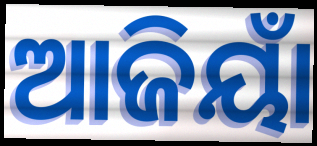
ଆଜିୟାଁ